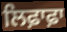
ਲਿਫ਼ਾਫ਼ਾ